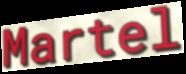
Martel